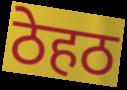
ठेहठ